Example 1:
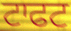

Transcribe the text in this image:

ਟਾਫਟ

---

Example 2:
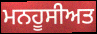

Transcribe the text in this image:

ਮਨਹੂਸੀਅਤ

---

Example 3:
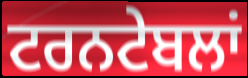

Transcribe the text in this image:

ਟਰਨਟੇਬਲਾਂ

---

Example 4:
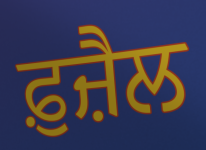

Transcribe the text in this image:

ਫ਼ੁਜ਼ੈਲ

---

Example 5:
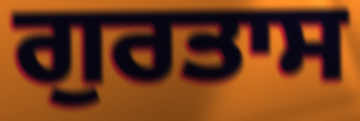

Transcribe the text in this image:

ਗੁਰਤਾਸ